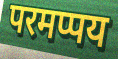
परमप्पय